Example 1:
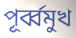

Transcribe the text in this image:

পূর্ব্বমুখ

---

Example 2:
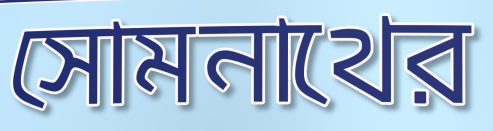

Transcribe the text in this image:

সোমনাথের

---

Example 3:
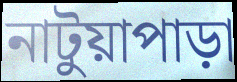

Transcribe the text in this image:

নাটুয়াপাড়া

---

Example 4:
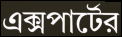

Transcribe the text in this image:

এক্সপার্টের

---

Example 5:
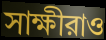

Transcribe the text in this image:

সাক্ষীরাও